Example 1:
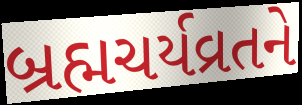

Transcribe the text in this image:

બ્રહ્મચર્યવ્રતને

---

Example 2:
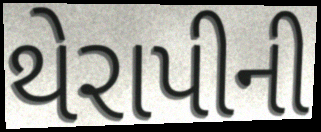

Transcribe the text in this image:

થેરાપીની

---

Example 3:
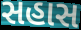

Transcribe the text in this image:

સહાસ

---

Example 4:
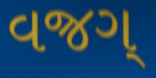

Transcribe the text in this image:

વજ્રગ્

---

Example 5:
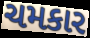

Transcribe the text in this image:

ચમકાર